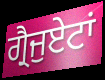
ਗ੍ਰੈਜੁਏਟਾਂ